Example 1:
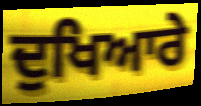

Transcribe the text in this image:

ਦੁਖਿਆਰੇ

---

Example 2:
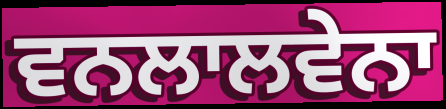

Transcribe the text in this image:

ਵਨਲਾਲਵੇਨਾ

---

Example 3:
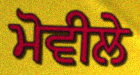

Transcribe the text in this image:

ਮੋਵੀਲੇ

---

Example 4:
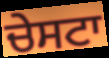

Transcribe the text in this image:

ਚੇਸਟਾ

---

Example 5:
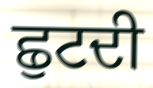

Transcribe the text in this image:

ਛੁਟਦੀ